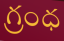
గ్రంధ